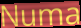
Numa